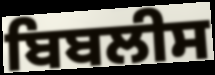
ਬਿਬਲੀਸ